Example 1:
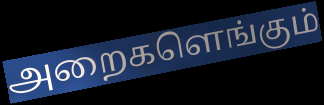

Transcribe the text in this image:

அறைகளெங்கும்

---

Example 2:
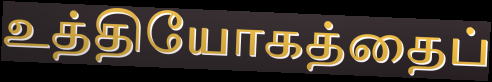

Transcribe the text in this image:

உத்தியோகத்தைப்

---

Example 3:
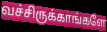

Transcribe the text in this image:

வச்சிருக்காங்களே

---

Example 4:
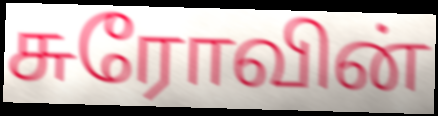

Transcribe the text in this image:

சுரோவின்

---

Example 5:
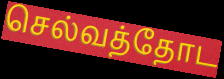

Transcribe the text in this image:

செல்வத்தோட